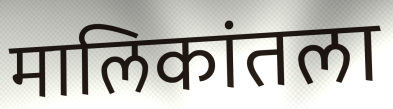
मालिकांतला